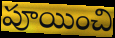
పూయించి